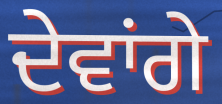
ਦੇਵਾਂਗੇ